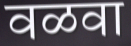
वळवा